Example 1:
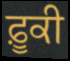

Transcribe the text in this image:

ਫ਼ੂਕੀ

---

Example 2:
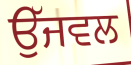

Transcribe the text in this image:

ਉੱਜਵਲ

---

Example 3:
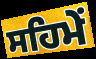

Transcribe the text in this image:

ਸਹਿਮੇਂ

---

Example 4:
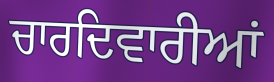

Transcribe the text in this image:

ਚਾਰਦਿਵਾਰੀਆਂ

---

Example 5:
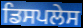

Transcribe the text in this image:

ਡਿਸਪਲੇਸ